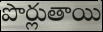
పొర్లుతాయి